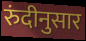
रुंदीनुसार